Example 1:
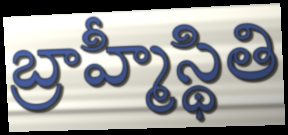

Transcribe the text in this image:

బ్రాహ్మీస్థితి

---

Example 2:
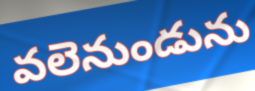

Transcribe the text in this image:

వలెనుండును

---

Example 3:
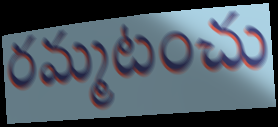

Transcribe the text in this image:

రమ్మటంచు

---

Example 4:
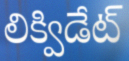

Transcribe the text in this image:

లిక్విడేట్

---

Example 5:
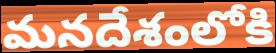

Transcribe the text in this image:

మనదేశంలోకి